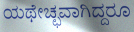
ಯಥೇಚ್ಛವಾಗಿದ್ದರೂ